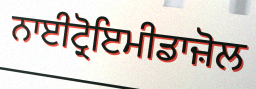
ਨਾਈਟ੍ਰੋਇਮੀਡਾਜ਼ੋਲ